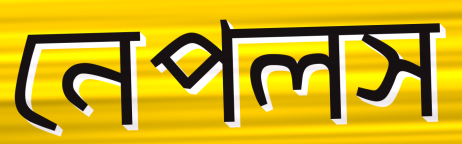
নেপলস